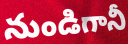
నుండిగానీ